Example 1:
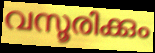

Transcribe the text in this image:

വസൂരിക്കും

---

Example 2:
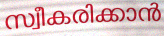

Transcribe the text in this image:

സ്വീകരിക്കാൻ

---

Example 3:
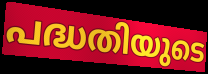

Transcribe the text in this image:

പദ്ധതിയുടെ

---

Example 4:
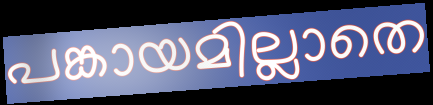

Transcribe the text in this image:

പങ്കായമില്ലാതെ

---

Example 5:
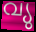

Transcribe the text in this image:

വ്യു